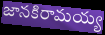
జానకిరామయ్య